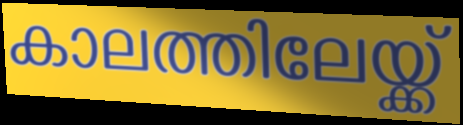
കാലത്തിലേയ്ക്ക്